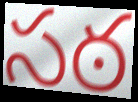
సఠ